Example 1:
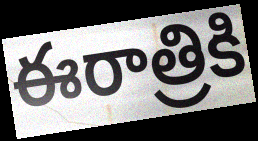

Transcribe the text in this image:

ఈరాత్రికి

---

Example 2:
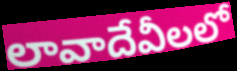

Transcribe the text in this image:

లావాదేవీలలో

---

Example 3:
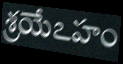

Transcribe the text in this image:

శ్రయేఽహం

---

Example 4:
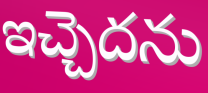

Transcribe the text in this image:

ఇచ్చెదను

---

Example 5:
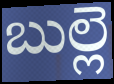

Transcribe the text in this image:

బుల్లె